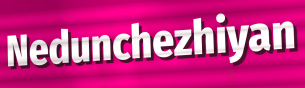
Nedunchezhiyan